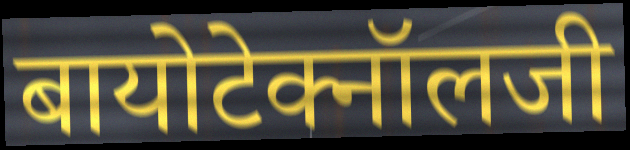
बायोटेक्नॉलजी